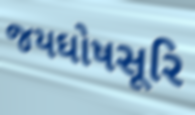
જયઘોષસૂરિ